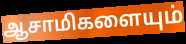
ஆசாமிகளையும்